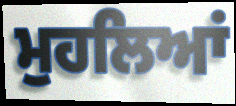
ਮੁਹਲਿਆਂ